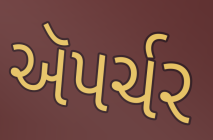
ઍપર્ચર